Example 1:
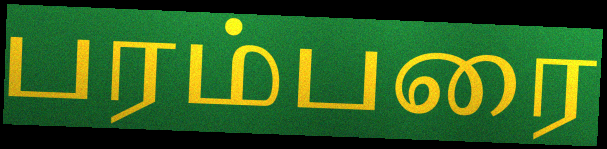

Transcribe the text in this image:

பரம்பரை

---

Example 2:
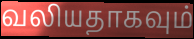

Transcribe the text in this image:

வலியதாகவும்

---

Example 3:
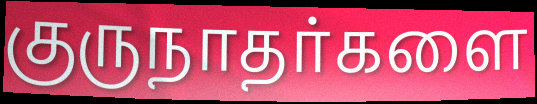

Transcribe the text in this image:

குருநாதர்களை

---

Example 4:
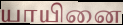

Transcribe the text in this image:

யாயினை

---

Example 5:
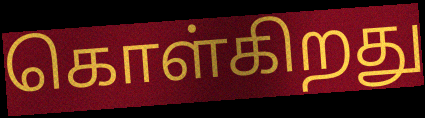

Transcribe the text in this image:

கொள்கிறது